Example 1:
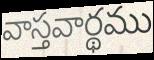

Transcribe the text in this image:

వాస్తవార్థము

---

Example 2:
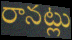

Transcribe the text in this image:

రానట్లు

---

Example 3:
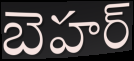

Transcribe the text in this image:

బెహర్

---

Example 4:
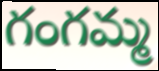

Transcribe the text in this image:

గంగమ్మ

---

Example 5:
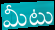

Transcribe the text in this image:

మీటు